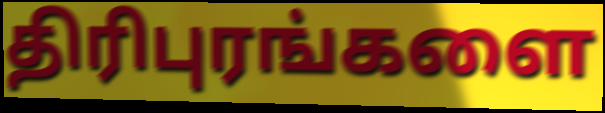
திரிபுரங்களை